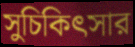
সুচিকিৎসার